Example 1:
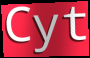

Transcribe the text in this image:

Cyt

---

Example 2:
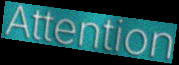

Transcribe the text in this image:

Attention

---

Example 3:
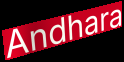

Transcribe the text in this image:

Andhara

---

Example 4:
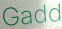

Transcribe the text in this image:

Gadd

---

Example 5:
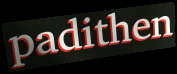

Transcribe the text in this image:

padithen